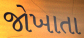
જોખાતા